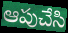
ఆపుచేసి